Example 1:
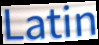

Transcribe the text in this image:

Latin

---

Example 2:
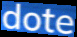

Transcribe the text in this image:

dote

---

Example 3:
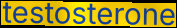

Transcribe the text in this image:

testosterone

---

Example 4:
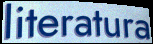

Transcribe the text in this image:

literatura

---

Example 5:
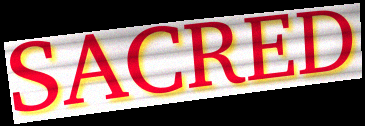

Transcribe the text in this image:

SACRED